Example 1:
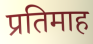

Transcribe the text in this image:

प्रतिमाह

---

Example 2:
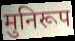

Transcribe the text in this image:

मुनिरूप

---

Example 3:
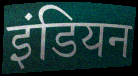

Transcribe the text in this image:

इंडियन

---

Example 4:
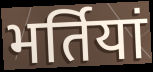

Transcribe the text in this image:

भर्तियां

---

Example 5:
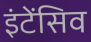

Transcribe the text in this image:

इंटेंसिव